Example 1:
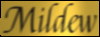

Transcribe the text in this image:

Mildew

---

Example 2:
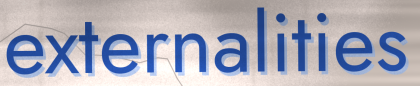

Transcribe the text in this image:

externalities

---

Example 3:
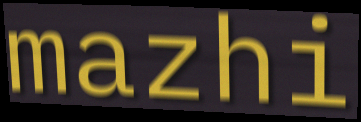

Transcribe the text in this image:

mazhi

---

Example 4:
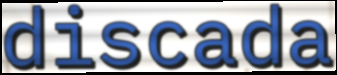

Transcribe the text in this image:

discada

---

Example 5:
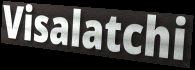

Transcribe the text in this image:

Visalatchi